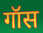
गॉस